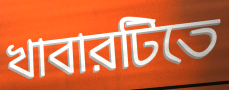
খাবারটিতে